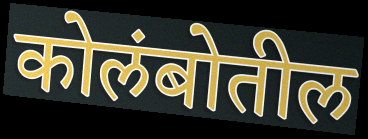
कोलंबोतील